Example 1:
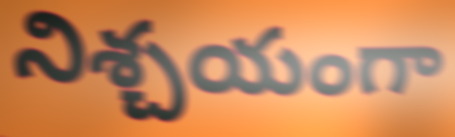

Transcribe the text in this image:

నిశ్చయంగా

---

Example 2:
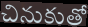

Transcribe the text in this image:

చినుకుతో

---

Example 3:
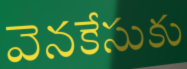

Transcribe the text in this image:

వెనకేసుకు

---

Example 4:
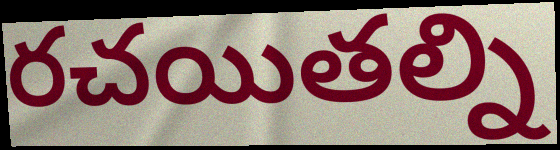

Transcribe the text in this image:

రచయితల్ని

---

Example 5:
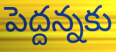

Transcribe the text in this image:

పెద్దన్నకు